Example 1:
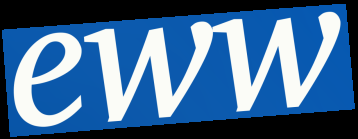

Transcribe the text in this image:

eww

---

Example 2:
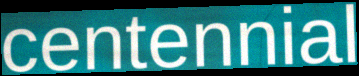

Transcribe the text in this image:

centennial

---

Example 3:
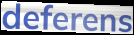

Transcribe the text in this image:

deferens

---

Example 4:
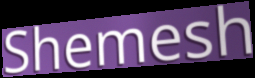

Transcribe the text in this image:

Shemesh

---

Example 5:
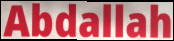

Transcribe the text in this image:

Abdallah